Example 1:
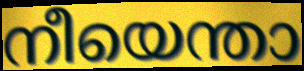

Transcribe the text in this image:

നീയെന്താ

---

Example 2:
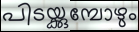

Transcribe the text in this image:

പിടയ്ക്കുമ്പോഴും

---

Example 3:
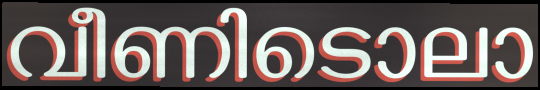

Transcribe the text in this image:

വീണിടൊലാ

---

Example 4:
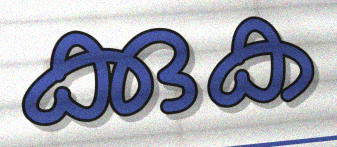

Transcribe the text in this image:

ക്കുക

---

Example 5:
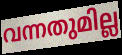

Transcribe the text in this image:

വന്നതുമില്ല